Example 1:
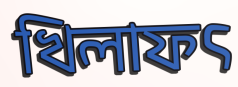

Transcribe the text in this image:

খিলাফৎ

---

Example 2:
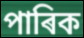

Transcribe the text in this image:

পাৰিক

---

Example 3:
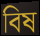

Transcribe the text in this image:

বিষ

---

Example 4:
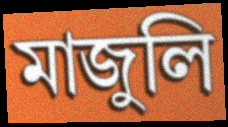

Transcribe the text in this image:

মাজুলি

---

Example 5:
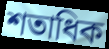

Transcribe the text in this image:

শতাধিক